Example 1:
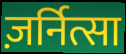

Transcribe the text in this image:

ज़र्नित्सा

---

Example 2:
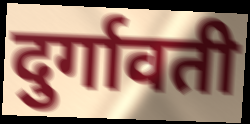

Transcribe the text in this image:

दुर्गावती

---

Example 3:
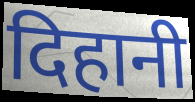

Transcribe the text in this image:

दिहानी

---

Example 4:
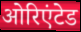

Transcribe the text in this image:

ओरिएंटेड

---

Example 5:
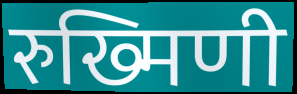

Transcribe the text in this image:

रुख्मिणी